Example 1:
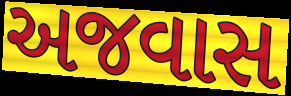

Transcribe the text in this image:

અજવાસ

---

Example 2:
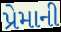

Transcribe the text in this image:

પ્રેમાની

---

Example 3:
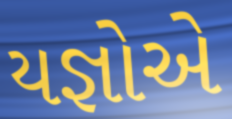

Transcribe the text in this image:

યજ્ઞોએ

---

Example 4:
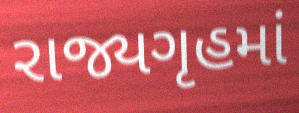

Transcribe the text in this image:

રાજ્યગૃહમાં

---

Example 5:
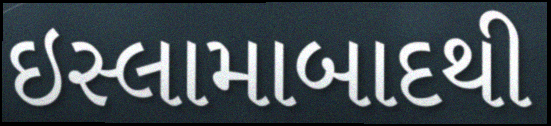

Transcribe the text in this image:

ઇસ્લામાબાદથી